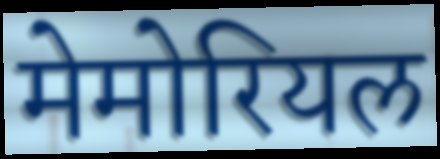
मेमोरियल